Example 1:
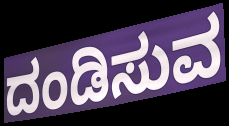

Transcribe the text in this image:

ದಂಡಿಸುವ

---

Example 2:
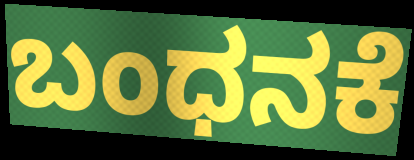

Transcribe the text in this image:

ಬಂಧನಕೆ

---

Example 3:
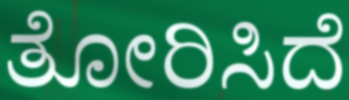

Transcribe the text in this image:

ತೋರಿಸಿದೆ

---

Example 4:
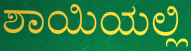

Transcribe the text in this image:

ಶಾಯಿಯಲ್ಲಿ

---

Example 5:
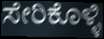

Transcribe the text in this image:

ಸೇರಿಕೊಳ್ಳಿ